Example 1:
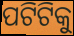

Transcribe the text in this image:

ପଟିଟିକୁ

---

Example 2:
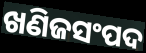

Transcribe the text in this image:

ଖଣିଜସଂପଦ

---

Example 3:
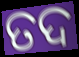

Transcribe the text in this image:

ତଦ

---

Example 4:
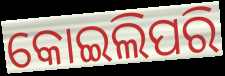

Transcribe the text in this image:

କୋଇଲିପରି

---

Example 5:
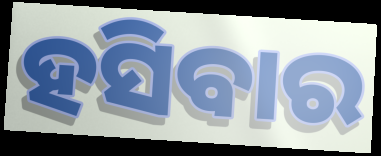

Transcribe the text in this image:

ହସିବାର